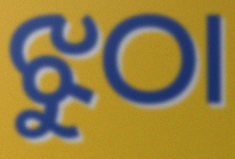
ଝୁଠା